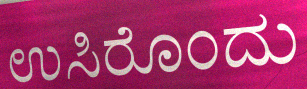
ಉಸಿರೊಂದು